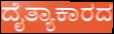
ದೈತ್ಯಾಕಾರದ